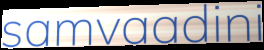
samvaadini